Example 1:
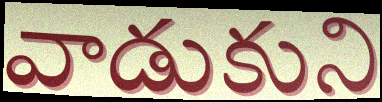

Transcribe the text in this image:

వాడుకుని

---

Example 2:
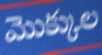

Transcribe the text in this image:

మొక్కుల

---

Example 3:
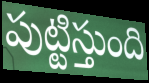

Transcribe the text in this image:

పుట్టిస్తుంది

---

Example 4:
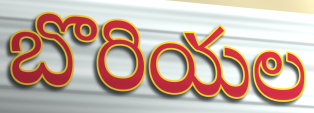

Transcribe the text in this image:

బొరియల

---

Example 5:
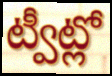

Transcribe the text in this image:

ట్వీట్లో